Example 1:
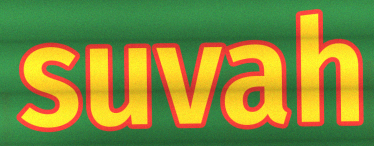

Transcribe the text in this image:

suvah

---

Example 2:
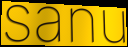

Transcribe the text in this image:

sanu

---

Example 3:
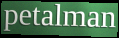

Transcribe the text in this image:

petalman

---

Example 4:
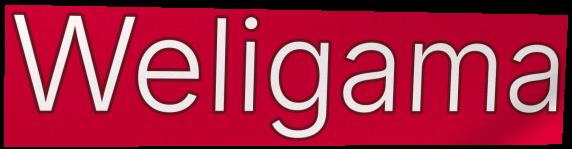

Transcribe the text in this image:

Weligama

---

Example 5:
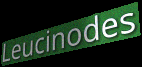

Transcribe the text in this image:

Leucinodes